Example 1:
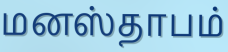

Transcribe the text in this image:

மனஸ்தாபம்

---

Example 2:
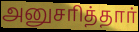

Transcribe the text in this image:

அனுசரித்தார்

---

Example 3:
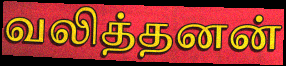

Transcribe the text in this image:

வலித்தனன்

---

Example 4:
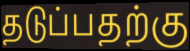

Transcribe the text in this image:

தடுப்பதற்கு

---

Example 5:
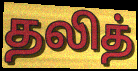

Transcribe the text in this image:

தலித்